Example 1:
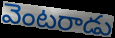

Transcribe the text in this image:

వెంటరాడు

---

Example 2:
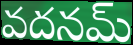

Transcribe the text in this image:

వదనమ్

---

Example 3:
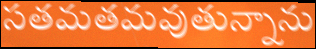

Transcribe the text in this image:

సతమతమవుతున్నాను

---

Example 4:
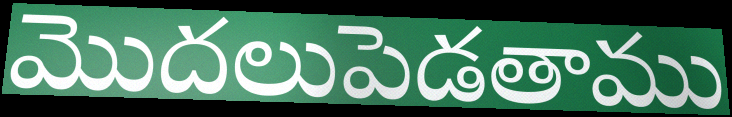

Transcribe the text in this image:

మొదలుపెడతాము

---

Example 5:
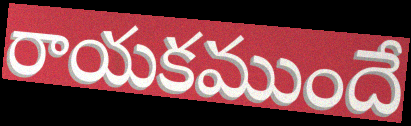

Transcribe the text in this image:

రాయకముందే